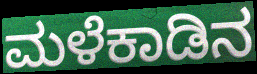
ಮಳೆಕಾಡಿನ